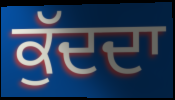
ਕੁੱਦਦਾ